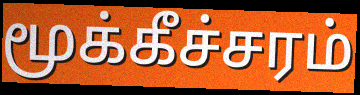
மூக்கீச்சரம்